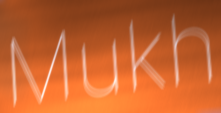
Mukh